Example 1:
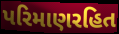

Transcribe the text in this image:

પરિમાણરહિત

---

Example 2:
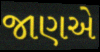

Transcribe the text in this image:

જાણએ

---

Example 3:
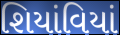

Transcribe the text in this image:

શિયાંવિયાં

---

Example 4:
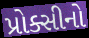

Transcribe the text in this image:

પ્રોક્સીનો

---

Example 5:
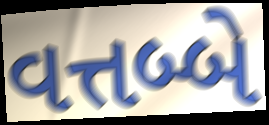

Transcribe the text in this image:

વત્તબ્બે